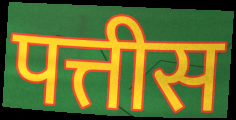
पत्तीस